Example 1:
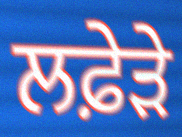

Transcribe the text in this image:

ਲਫ਼ੇੜੇ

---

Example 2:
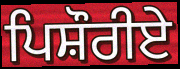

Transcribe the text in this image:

ਪਿਸ਼ੌਰੀਏ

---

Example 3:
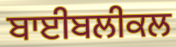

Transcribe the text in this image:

ਬਾਈਬਲੀਕਲ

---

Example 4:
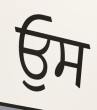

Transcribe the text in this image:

ਓੁਸ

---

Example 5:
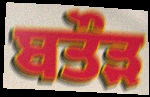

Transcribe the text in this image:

ਬਤੌੜ